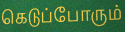
கெடுப்போரும்